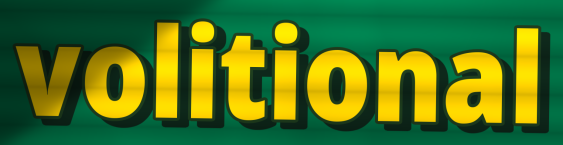
volitional